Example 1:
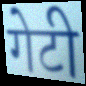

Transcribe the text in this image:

गेटी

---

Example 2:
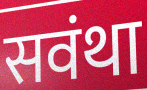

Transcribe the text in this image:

सवंथा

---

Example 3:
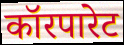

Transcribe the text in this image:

कॉरपारेट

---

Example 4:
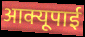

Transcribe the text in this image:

आक्यूपाई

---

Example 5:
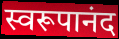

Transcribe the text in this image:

स्वरूपानंद